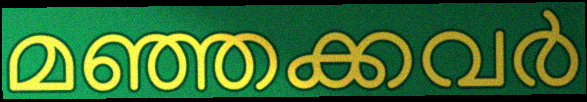
മഞ്ഞക്കവർ